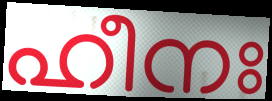
ഹീനഃ